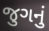
જુગનું